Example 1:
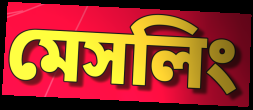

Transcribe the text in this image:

মেসলিং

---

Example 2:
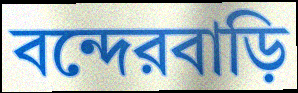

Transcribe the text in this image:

বন্দেরবাড়ি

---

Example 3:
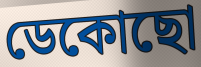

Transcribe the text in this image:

ডেকোছো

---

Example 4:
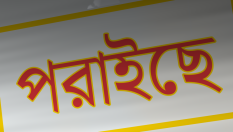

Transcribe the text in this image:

পরাইছে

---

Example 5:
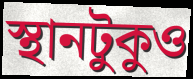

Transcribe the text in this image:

স্থানটুকুও